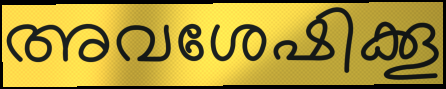
അവശേഷിക്കൂ